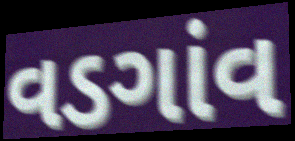
વડગાંવ